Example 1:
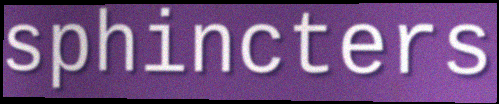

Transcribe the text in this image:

sphincters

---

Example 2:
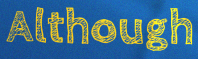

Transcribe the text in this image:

Although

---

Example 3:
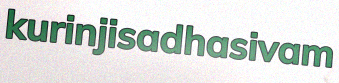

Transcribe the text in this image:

kurinjisadhasivam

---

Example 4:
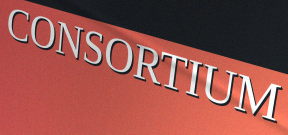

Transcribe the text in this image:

CONSORTIUM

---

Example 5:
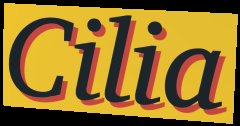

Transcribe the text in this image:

Cilia